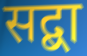
सद्बा